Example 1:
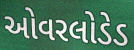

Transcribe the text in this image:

ઓવરલોડેડ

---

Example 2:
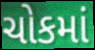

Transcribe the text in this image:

ચોકમાં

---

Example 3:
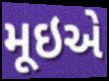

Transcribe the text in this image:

મૂઇએ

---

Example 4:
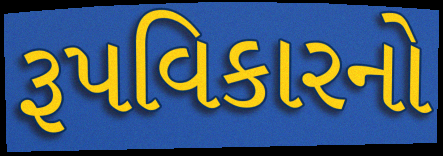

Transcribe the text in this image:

રૂપવિકારનો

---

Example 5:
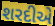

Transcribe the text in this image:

શરદીએ